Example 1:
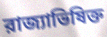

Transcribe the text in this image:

রাজ্যাভিষিক্ত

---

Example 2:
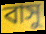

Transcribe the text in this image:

বাসু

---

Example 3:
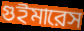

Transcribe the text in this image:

গুইমারেস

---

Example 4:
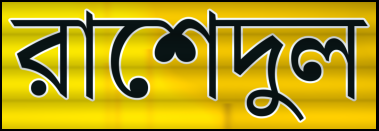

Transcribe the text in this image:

রাশেদুল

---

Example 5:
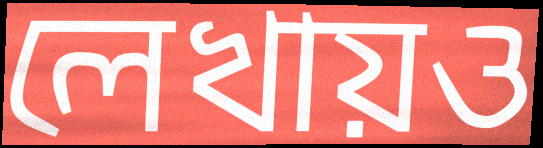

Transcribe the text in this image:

লেখায়ও